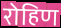
रोहिण